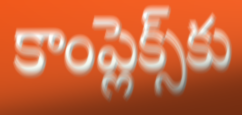
కాంప్లెక్స్‌కు